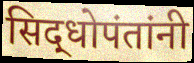
सिद्धोपंतांनी